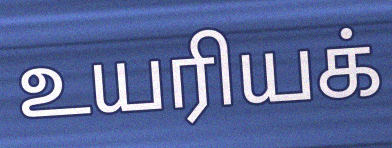
உயரியக்